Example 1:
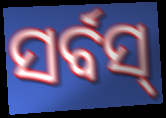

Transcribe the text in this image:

ସର୍ବସ୍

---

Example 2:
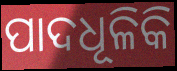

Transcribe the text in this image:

ପାଦଧୂଳିକି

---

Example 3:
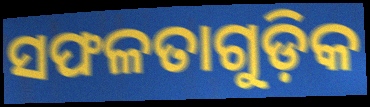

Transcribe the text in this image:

ସଫଳତାଗୁଡ଼ିକ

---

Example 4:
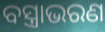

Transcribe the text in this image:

ବସ୍ତ୍ରାଭରଣ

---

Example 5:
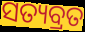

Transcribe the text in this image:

ସତ୍ୟବ୍ରତ